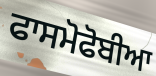
ਫਾਸਮੋਫੋਬੀਆ